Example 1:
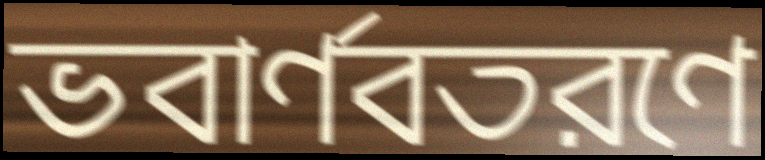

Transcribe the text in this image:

ভবার্ণবতরণে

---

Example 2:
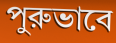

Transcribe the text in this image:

পুরুভাবে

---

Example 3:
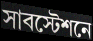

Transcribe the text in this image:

সাবস্টেশনে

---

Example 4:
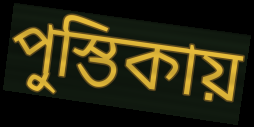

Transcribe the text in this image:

পুস্তিকায়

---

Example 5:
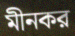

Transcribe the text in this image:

মীনকর